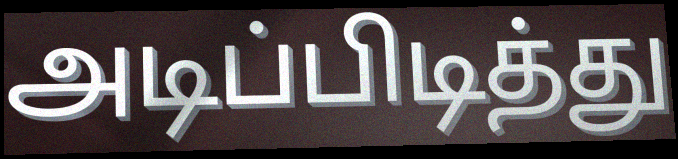
அடிப்பிடித்து